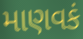
માણવકં